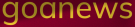
goanews